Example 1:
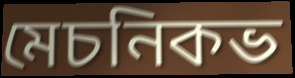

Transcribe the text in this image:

মেচনিকভ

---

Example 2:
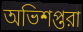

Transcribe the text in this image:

অভিশপ্তরা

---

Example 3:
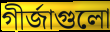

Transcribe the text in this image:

গীর্জাগুলো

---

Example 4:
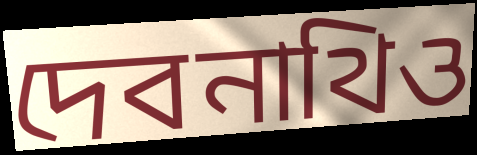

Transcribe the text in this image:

দেবনাথিও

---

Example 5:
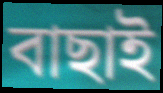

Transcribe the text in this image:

বাছাই